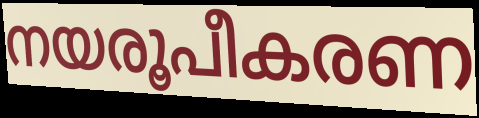
നയരൂപീകരണ